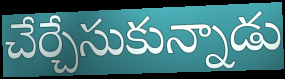
చేర్చేసుకున్నాడు